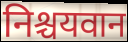
निश्चयवान